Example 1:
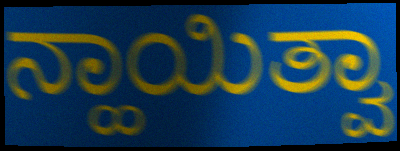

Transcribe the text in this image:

ನ್ಹಾಯಿತ್ವಾ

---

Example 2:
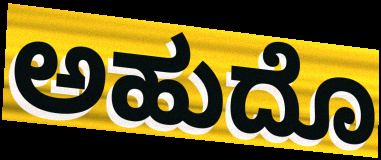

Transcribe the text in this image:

ಅಹುದೊ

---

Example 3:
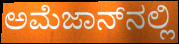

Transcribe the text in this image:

ಅಮೆಜಾನ್‌ನಲ್ಲಿ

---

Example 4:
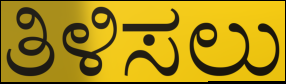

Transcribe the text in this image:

ತಿಳಿಸಲು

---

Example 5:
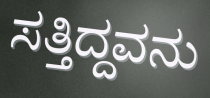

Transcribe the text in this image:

ಸತ್ತಿದ್ದವನು